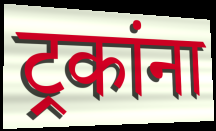
ट्रकांना